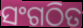
ସଂଗଠିତ